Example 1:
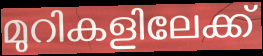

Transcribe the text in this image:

മുറികളിലേക്ക്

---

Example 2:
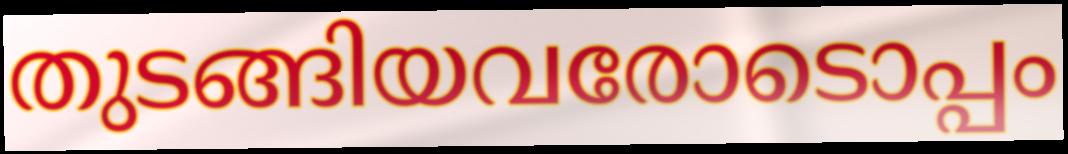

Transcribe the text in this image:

തുടങ്ങിയവരോടൊപ്പം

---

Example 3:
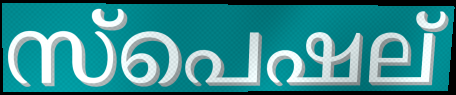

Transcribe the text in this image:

സ്പെഷല്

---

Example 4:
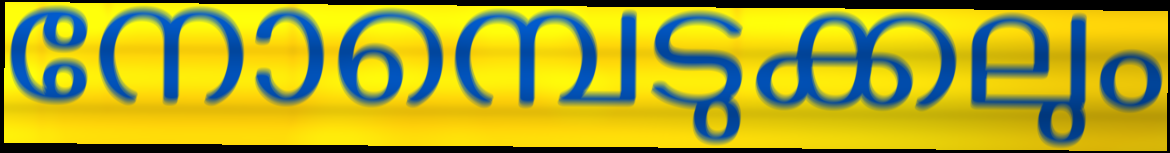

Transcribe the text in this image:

നോമ്പെടുക്കലും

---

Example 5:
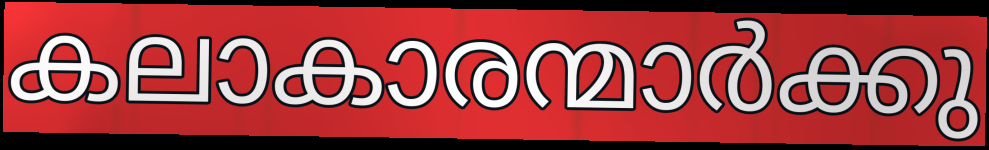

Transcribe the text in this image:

കലാകാരന്മാർക്കു